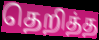
தெறித்த